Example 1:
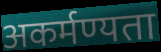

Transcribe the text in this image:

अकर्मण्यता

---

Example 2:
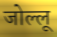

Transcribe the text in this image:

जोल्लू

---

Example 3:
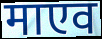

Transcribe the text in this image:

माएव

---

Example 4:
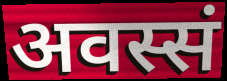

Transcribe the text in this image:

अवस्सं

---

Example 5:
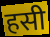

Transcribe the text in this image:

हसी